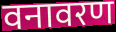
वनावरण